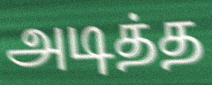
அடித்த